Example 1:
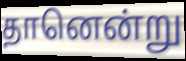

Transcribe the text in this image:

தானென்று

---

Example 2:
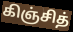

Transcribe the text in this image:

கிஞ்சித்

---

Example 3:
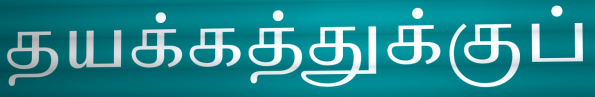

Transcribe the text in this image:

தயக்கத்துக்குப்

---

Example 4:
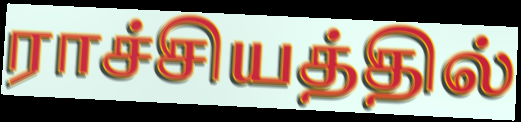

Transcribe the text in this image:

ராச்சியத்தில்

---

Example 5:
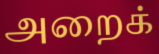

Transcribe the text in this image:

அறைக்